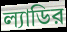
ল্যাডির